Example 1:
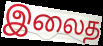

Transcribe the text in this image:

இலைத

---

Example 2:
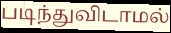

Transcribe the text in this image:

படிந்துவிடாமல்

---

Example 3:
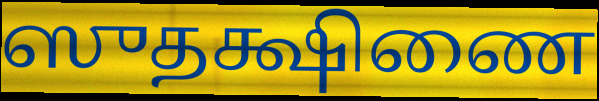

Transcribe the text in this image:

ஸுதக்ஷிணை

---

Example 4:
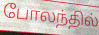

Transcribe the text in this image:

போலந்தில்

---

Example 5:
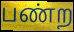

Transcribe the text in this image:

பண்ற